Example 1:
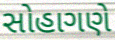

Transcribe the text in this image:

સોહાગણે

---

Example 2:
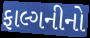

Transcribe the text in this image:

ફાલ્ગનીનો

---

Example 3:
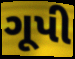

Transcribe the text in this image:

ગૂપી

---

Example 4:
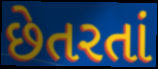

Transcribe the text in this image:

છેતરતાં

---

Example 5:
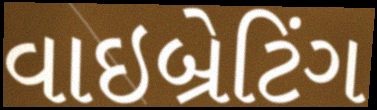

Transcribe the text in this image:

વાઇબ્રેટિંગ